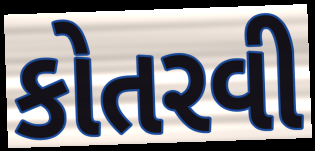
કોતરવી